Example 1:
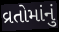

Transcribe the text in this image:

વ્રતોમાંનું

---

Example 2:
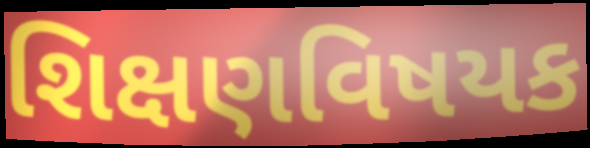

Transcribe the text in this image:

શિક્ષણવિષયક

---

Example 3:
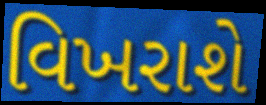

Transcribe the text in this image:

વિખરાશે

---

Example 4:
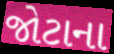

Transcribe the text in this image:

જોટાના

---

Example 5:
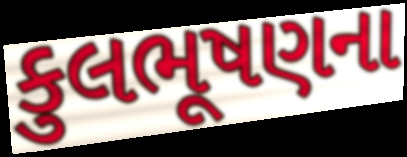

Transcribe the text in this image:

કુલભૂષણના